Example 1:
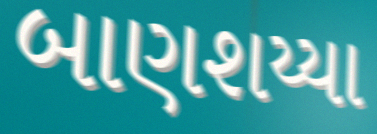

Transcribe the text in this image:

બાણશય્યા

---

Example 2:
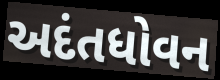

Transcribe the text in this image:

અદંતધોવન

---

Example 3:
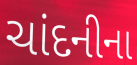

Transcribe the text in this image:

ચાંદનીના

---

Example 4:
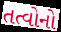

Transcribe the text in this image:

તત્વોનો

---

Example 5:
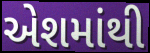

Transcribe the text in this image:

એશમાંથી